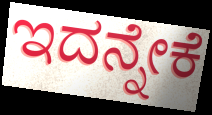
ಇದನ್ನೇಕೆ